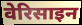
वेरिसाइन